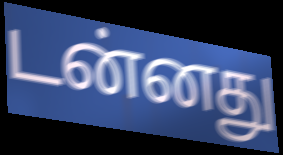
டன்னது